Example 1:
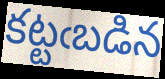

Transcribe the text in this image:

కట్టఁబడిన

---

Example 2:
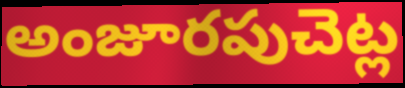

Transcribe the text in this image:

అంజూరపుచెట్ల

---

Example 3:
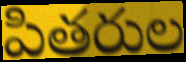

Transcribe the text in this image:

పితరుల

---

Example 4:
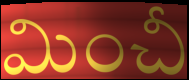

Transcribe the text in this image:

మించీ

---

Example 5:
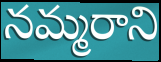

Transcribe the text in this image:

నమ్మరాని